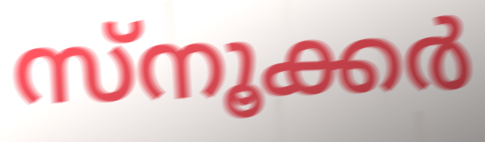
സ്നൂക്കർ